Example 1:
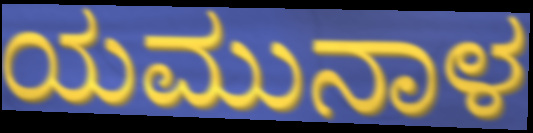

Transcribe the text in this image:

ಯಮುನಾಳ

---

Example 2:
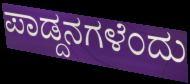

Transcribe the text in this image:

ಪಾಡ್ದನಗಳೆಂದು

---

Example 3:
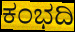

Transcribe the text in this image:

ಕಂಭದಿ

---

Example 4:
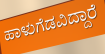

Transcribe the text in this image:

ಹಾಳುಗೆಡವಿದ್ದಾರೆ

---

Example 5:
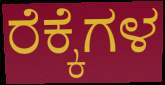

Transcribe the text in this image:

ರೆಕ್ಕೆಗಳ